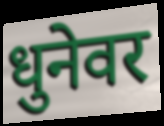
धुनेवर